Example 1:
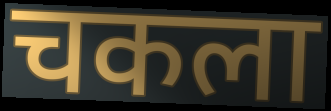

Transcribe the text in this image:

चकला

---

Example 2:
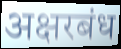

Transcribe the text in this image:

अक्षरबंध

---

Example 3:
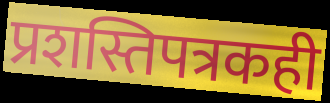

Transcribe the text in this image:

प्रशस्तिपत्रकही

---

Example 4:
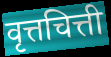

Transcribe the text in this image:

वृत्तचित्ती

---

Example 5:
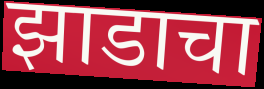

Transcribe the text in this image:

झाडाचा